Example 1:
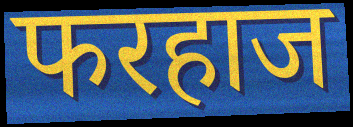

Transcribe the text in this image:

फरहाज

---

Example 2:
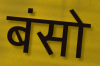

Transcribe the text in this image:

बंसो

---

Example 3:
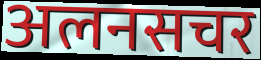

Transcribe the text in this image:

अलनसचर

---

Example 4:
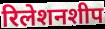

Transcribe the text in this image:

रिलेशनशीप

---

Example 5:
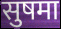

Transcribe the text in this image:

सुषमा